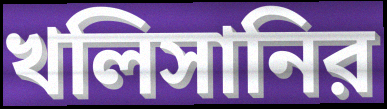
খলিসানির